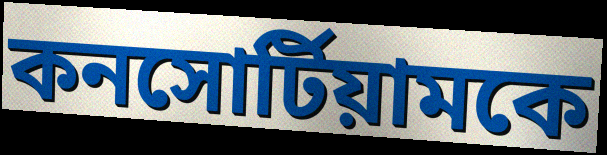
কনসোর্টিয়ামকে